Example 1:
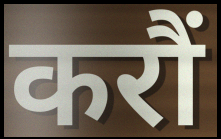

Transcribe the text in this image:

करौं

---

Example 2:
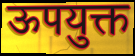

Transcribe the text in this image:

ऊपयुक्त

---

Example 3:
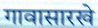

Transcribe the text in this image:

गावासारखे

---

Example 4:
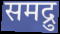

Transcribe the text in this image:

समद्रु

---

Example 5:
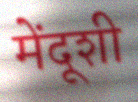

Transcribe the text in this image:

मेंदूशी